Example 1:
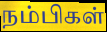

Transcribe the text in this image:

நம்பிகள்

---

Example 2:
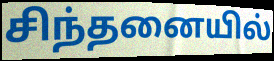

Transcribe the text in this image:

சிந்தனையில்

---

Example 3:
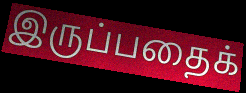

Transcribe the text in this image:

இருப்பதைக்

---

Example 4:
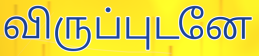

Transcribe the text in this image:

விருப்புடனே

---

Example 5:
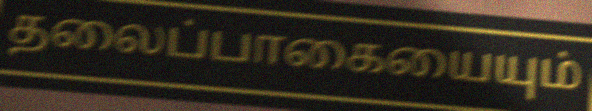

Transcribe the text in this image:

தலைப்பாகையையும்